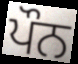
ਪੌਨ